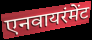
एनवायरंमेंट